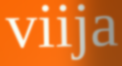
viija